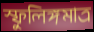
স্ফুলিঙ্গমাত্র